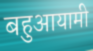
बहुआयामी